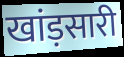
खांड़सारी